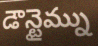
డౌన్టైమ్ను